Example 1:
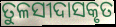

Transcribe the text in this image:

ତୁଳସୀଦାସକୃତ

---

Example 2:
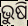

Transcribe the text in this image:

ଭୁଷି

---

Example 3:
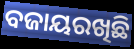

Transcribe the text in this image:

ବଜାୟରଖିଛି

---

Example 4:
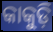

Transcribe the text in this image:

କାକୁଡ଼ି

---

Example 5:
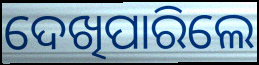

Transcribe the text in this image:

ଦେଖିପାରିଲେ